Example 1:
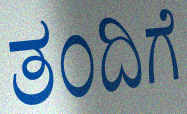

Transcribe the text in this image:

ತಂದಿಗೆ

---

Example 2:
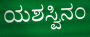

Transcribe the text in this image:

ಯಶಸ್ವಿನಂ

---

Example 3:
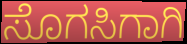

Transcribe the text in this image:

ಸೊಗಸಿಗಾಗಿ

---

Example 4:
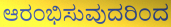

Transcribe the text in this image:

ಆರಂಭಿಸುವುದರಿಂದ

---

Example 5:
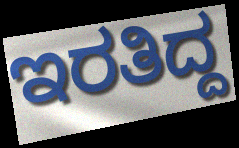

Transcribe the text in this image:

ಇರತಿದ್ದ